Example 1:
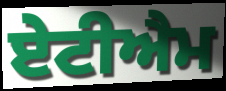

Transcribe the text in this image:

ਏਟੀਐਮ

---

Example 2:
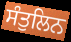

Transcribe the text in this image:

ਸੰਤੁਲਿਨ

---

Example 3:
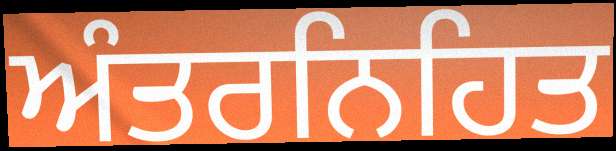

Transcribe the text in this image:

ਅੰਤਰਨਿਹਿਤ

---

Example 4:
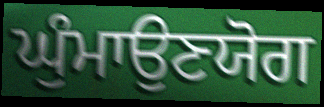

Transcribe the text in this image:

ਘੁੰਮਾਉਣਯੋਗ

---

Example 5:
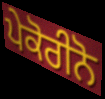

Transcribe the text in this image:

ਪੇਕੋਰੀਨੋ